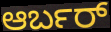
ಆರ್ಬರ್